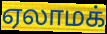
ஏலாமக்